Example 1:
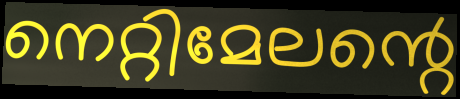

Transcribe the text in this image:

നെറ്റിമേലന്റെ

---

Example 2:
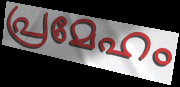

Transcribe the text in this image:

പ്രമേഹം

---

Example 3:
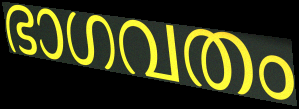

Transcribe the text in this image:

ഭാഗവതം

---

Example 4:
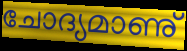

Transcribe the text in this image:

ചോദ്യമാണു്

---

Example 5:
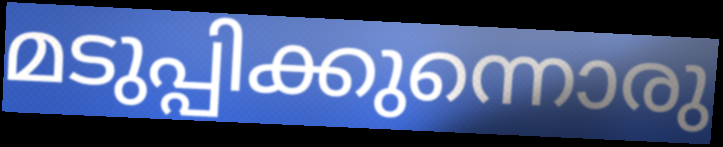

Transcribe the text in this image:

മടുപ്പിക്കുന്നൊരു